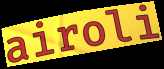
airoli